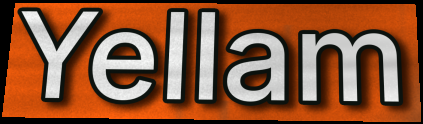
Yellam